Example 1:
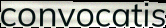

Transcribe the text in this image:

convocatis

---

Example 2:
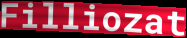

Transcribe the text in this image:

Filliozat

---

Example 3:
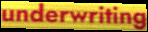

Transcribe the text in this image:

underwriting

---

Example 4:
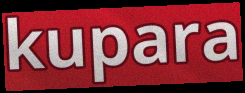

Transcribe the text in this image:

kupara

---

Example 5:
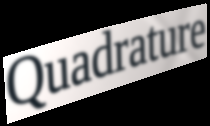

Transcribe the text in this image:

Quadrature